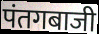
पंतगबाजी